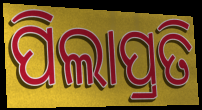
ପିଲାପ୍ରତି